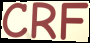
CRF